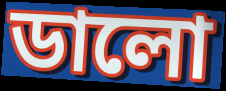
ডালো